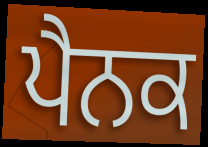
ਪੈਨਕ